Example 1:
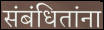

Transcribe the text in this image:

संबंधितांना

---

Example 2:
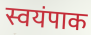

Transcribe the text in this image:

स्वयंपाक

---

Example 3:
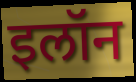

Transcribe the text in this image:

इलॉन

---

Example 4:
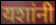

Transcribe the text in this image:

यशांनी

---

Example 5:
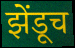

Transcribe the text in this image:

झेंडूच